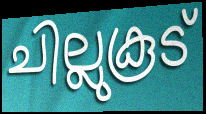
ചില്ലുകൂട്